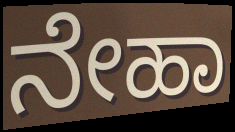
ನೇಹಾ